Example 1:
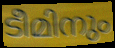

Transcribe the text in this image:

ടീമിനും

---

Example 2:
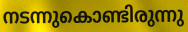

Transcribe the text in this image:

നടന്നുകൊണ്ടിരുന്നു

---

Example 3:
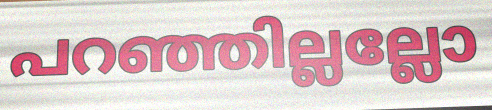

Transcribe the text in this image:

പറഞ്ഞില്ലല്ലോ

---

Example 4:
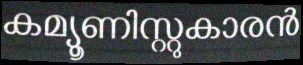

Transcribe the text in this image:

കമ്യൂണിസ്റ്റുകാരൻ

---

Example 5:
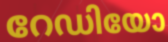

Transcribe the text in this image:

റേഡിയോ